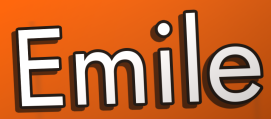
Emile